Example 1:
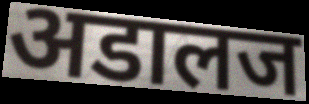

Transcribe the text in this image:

अडालज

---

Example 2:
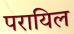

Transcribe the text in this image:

परायिल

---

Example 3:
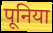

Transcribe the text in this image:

पूनिया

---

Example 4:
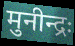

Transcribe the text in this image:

मुनीन्द्रः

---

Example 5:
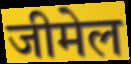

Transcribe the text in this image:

जीमेल